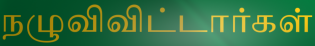
நழுவிவிட்டார்கள்